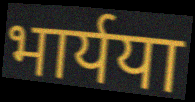
भार्यया